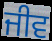
ਜੀਵ